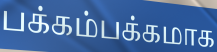
பக்கம்பக்கமாக